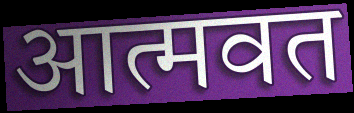
आत्मवत